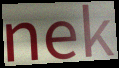
nek